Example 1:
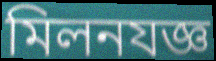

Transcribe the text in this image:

মিলনযজ্ঞ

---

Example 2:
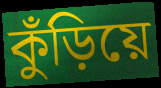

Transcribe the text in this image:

কুঁড়িয়ে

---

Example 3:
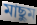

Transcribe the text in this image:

মাছুম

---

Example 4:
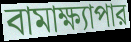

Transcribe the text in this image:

বামাক্ষ্যাপার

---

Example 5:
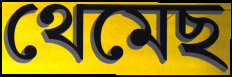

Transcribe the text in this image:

থেমেছ